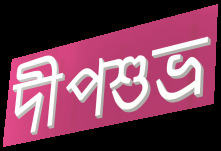
দীপশুভ্র